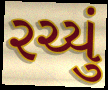
રચ્યું